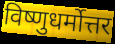
विष्णुधर्मोत्तर